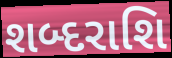
શબ્દરાશિ